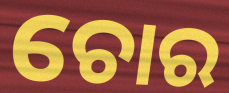
ଚୋର